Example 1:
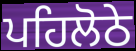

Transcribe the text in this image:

ਪਹਿਲੋਠੇ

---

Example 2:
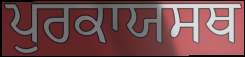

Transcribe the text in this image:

ਪੁਰਕਾਯਸਥ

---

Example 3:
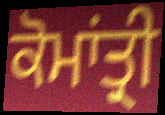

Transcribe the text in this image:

ਕੋਮਾਂਤ੍ਰੀ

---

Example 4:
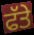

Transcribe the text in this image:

ਫੱਤੇ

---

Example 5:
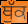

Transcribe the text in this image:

ਥੁੱਕ